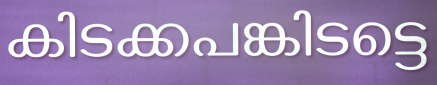
കിടക്കപങ്കിടട്ടെ